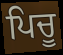
ਪਿਚੂ